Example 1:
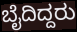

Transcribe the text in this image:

ಬೈದಿದ್ದರು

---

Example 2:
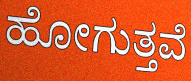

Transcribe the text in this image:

ಹೋಗುತ್ತವೆ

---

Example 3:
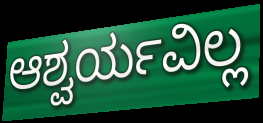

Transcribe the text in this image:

ಆಶ್ವರ್ಯವಿಲ್ಲ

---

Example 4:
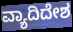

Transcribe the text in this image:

ವ್ಯಾದಿದೇಶ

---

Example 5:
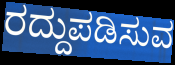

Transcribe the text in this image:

ರದ್ದುಪಡಿಸುವ